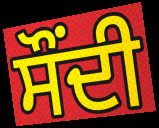
ਸੌਂਦੀ